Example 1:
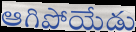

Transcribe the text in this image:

ఆగిపోయేడు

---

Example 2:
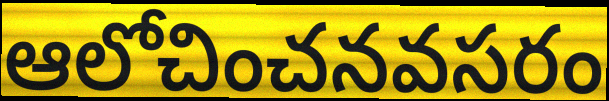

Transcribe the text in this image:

ఆలోచించనవసరం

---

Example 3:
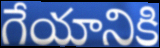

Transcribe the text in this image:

గేయానికి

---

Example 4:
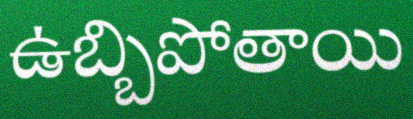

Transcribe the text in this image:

ఉబ్బిపోతాయి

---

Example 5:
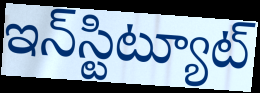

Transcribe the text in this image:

ఇన్‌స్టిట్యూట్